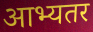
आभ्यतर